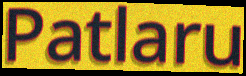
Patlaru